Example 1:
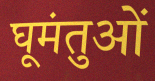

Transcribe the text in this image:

घूमंतुओं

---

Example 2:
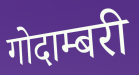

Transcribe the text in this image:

गोदाम्बरी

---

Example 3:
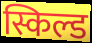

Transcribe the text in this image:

स्किल्ड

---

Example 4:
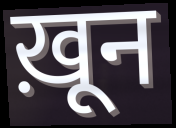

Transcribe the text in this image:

ख़ून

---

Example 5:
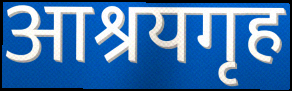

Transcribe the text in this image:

आश्रयगृह